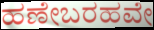
ಹಣೇಬರಹವೇ